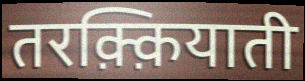
तरक़्क़ियाती